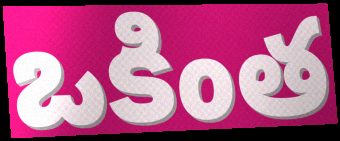
ఒకింత